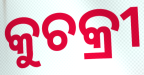
କୁଚକ୍ରୀ